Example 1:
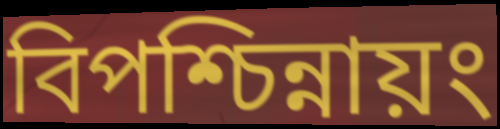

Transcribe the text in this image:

বিপশ্চিন্নায়ং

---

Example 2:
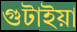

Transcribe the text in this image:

গুটাইয়া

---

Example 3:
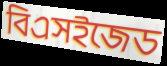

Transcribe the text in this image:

বিএসইজেড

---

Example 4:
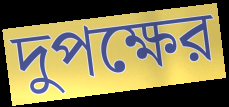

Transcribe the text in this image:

দুপক্ষের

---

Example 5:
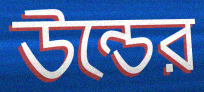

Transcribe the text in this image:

উন্ডের